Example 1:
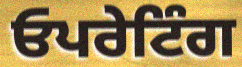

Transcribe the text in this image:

ਓਪਰੇਟਿੰਗ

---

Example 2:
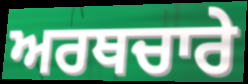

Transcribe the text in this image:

ਅਰਥਚਾਰੇ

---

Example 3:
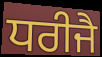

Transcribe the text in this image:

ਧਰੀਜੈ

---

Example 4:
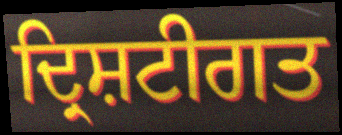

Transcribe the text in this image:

ਦ੍ਰਿਸ਼ਟੀਗਤ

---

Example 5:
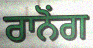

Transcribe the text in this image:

ਰਾਨੋਂਗ